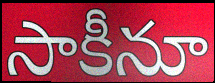
సాకీనూ